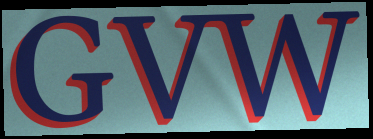
GVW